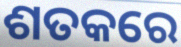
ଶତକରେ